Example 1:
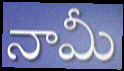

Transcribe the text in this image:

నామీ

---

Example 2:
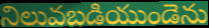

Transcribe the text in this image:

నిలువబడియుండెను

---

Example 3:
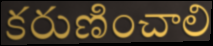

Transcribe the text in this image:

కరుణించాలి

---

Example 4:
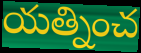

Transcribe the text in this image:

యత్నించ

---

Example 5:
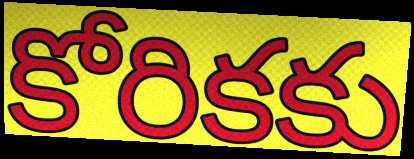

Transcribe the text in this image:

కోరికకు